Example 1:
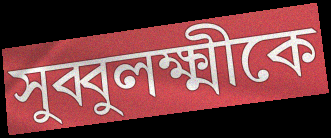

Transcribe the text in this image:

সুব্বুলক্ষ্মীকে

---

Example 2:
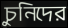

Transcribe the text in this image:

চুনিদের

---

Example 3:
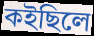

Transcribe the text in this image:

কইছিলে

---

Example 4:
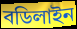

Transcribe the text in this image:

বডিলাইন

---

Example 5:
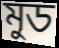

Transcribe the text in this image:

মুড